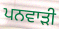
ਪਨਵਾੜੀ